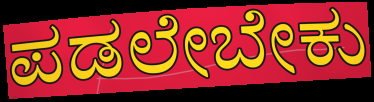
ಪಡಲೇಬೇಕು